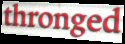
thronged